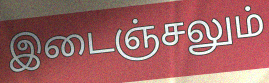
இடைஞ்சலும்